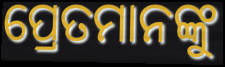
ପ୍ରେତମାନଙ୍କୁ